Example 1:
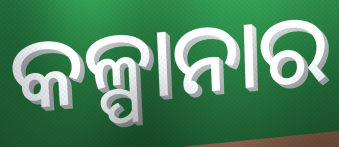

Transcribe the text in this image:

କଳ୍ପାନାର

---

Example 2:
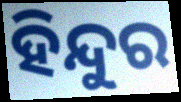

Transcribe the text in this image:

ହିନ୍ଦୁର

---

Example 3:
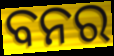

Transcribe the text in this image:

ବନର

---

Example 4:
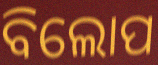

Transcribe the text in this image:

ବିଲୋପ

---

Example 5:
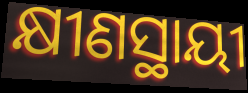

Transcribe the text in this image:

କ୍ଷୀଣସ୍ଥାୟୀ